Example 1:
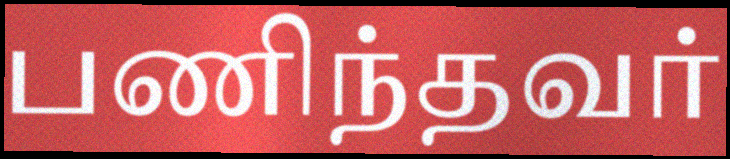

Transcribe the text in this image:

பணிந்தவர்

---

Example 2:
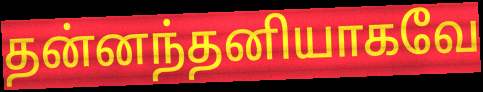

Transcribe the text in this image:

தன்னந்தனியாகவே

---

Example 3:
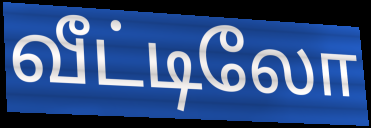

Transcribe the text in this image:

வீட்டிலோ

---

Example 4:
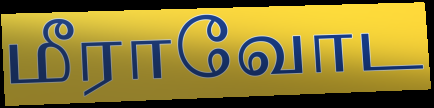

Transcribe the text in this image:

மீராவோட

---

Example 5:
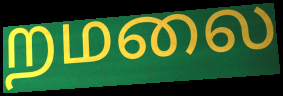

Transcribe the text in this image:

றமலை